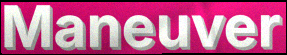
Maneuver